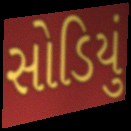
સોડિયું